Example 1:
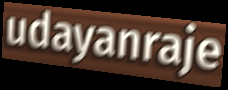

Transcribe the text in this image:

udayanraje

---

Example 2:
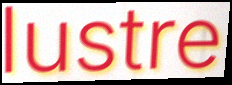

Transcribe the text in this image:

lustre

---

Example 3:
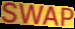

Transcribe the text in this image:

SWAP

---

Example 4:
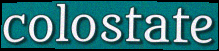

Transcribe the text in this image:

colostate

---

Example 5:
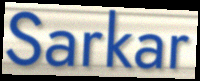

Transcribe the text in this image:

Sarkar